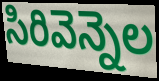
సిరివెన్నెల